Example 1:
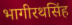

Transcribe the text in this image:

भागीरथसिंह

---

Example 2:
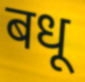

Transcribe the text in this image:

बधू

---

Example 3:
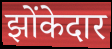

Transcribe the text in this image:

झोंकेदार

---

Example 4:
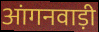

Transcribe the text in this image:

आंगनवाड़ी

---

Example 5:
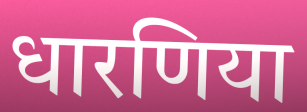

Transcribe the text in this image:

धारणिया